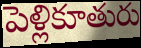
పెళ్లికూతురు